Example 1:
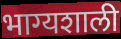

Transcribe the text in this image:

भाग्यशाली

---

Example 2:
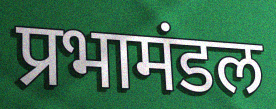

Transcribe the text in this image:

प्रभामंडल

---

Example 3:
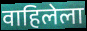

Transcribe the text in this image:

वाहिलेला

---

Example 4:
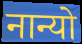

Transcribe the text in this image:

नान्यो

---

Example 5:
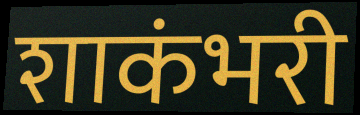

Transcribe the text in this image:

शाकंभरी